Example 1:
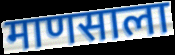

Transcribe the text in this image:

माणसाला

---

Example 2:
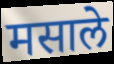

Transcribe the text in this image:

मसाले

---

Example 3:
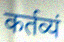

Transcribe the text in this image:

कर्तव्यं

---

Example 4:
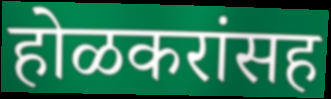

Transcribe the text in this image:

होळकरांसह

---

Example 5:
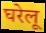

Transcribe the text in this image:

घरेलू